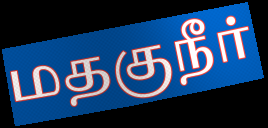
மதகுநீர்